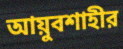
আয়ুবশাহীর